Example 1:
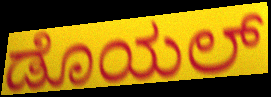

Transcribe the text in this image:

ಡೊಯಲ್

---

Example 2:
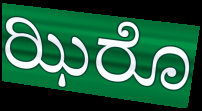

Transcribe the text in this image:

ಝಿರೊ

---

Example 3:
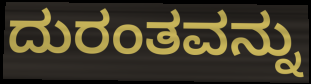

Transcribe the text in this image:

ದುರಂತವನ್ನು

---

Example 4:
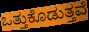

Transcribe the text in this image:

ಒತ್ತುಕೊಡುತ್ತವೆ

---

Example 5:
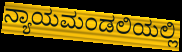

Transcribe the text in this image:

ನ್ಯಾಯಮಂಡಲಿಯಲ್ಲಿ